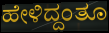
ಹೇಳಿದ್ದಂತೂ